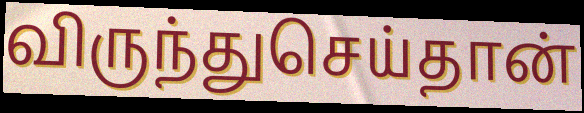
விருந்துசெய்தான்